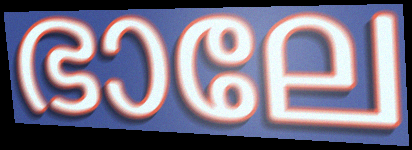
ഭാലേ